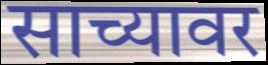
साच्यावर